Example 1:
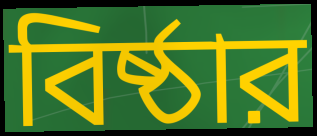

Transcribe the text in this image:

বিষ্ঠার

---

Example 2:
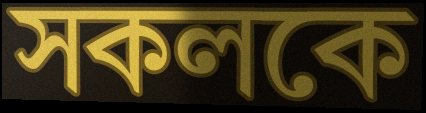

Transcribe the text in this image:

সকলকে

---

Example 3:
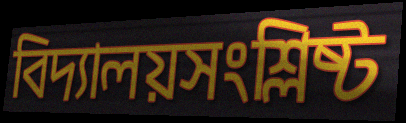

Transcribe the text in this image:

বিদ্যালয়সংশ্লিষ্ট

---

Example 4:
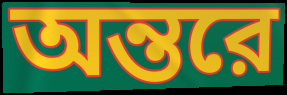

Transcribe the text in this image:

অন্তরে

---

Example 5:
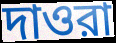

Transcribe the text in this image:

দাওরা